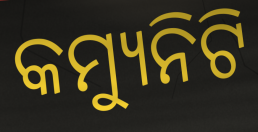
କମ୍ୟୁନିଟି